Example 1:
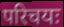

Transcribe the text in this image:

परिचयः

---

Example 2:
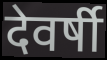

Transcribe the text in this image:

देवर्षी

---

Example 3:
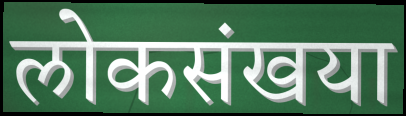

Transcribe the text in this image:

लोकसंखया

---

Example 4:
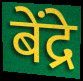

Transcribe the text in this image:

बेंद्रे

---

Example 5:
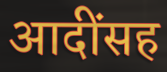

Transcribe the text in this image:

आदींसह